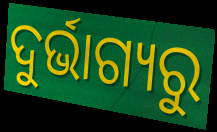
ଦୁର୍ଭାଗ୍ୟରୁ